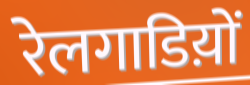
रेलगाडिय़ों